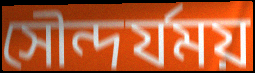
সৌন্দর্যময়